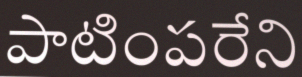
పాటింపరేని